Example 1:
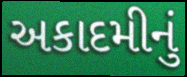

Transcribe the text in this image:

અકાદમીનું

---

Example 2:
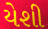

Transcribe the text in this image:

યેશી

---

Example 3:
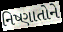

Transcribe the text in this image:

નિષ્ણાતોને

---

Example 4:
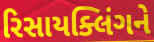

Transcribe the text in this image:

રિસાયક્લિંગને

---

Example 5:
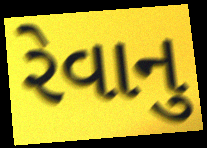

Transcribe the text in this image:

રેવાનુ